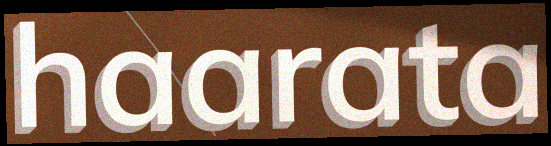
haarata